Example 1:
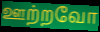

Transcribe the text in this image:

ஊற்றவோ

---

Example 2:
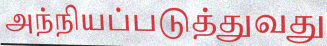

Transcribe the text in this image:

அந்நியப்படுத்துவது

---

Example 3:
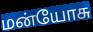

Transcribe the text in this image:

மன்யோசு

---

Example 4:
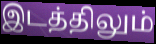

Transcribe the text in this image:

இடத்திலும்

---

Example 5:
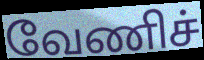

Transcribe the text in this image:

வேணிச்